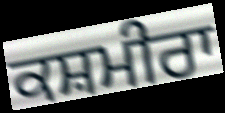
ਕਸ਼ਮੀਰਾ